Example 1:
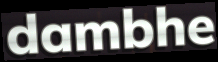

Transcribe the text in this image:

dambhe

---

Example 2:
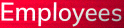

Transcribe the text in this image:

Employees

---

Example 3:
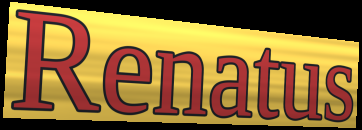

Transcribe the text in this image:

Renatus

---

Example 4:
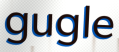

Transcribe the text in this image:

gugle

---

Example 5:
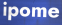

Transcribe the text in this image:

ipome